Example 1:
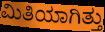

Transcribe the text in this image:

ಮಿತಿಯಾಗಿತ್ತು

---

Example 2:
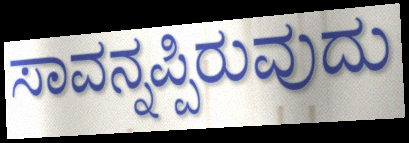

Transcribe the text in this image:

ಸಾವನ್ನಪ್ಪಿರುವುದು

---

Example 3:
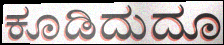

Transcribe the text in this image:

ಕೂಡಿದುದೂ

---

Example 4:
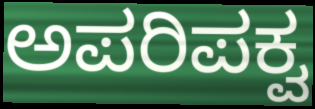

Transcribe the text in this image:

ಅಪರಿಪಕ್ವ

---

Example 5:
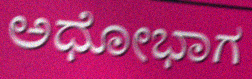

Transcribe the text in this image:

ಅಧೋಭಾಗ